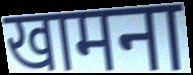
खामना